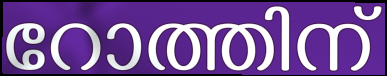
റോത്തിന്